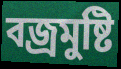
বজ্রমুষ্টি